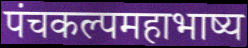
पंचकल्पमहाभाष्य